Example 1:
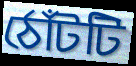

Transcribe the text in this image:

ঠোঁটটি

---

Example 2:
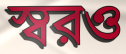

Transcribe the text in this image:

স্বরও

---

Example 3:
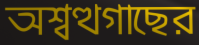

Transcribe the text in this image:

অশ্বত্থগাছের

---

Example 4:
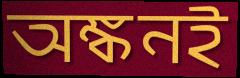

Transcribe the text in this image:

অঙ্কনই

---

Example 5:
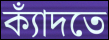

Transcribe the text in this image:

ক্যাঁদতে